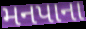
મનપાના